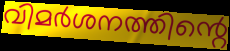
വിമർശനത്തിന്റെ